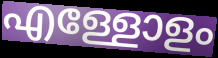
എള്ളോളം